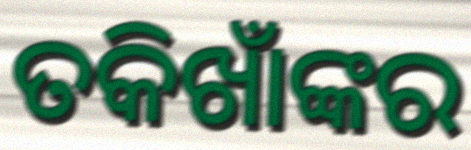
ତକିଖାଁଙ୍କର